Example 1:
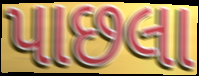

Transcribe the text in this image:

પાછલા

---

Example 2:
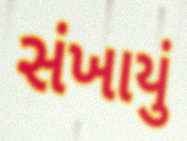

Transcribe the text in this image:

સંખાયું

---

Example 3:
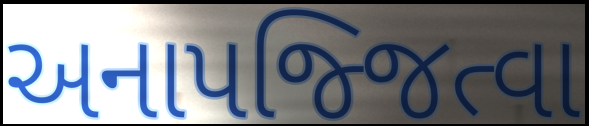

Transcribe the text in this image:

અનાપજ્જિત્વા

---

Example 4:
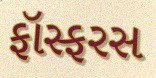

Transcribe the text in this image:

ફૉસ્ફરસ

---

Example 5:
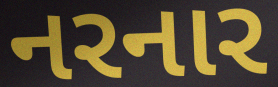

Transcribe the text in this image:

નરનાર